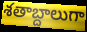
శతాబ్దాలుగా